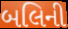
બલિની